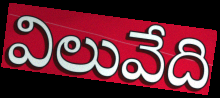
విలువేది